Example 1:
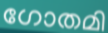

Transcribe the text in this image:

ഗോതമി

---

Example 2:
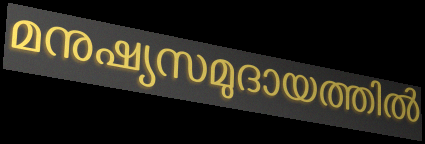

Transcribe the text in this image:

മനുഷ്യസമുദായത്തിൽ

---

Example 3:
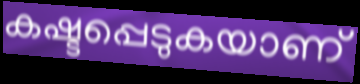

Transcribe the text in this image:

കഷ്ടപ്പെടുകയാണ്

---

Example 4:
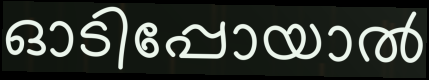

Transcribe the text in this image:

ഓടിപ്പോയാൽ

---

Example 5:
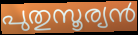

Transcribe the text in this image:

പുതുസൂര്യൻ